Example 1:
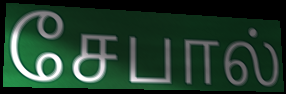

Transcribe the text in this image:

சேபால்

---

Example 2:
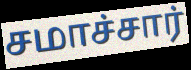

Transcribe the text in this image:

சமாச்சார்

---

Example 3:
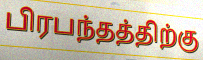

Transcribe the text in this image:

பிரபந்தத்திற்கு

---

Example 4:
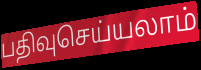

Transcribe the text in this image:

பதிவுசெய்யலாம்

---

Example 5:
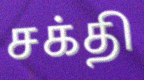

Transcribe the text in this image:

சக்தி